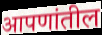
आपणांतील